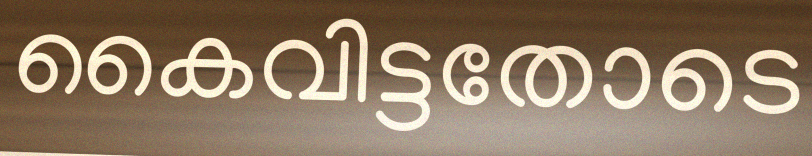
കൈവിട്ടതോടെ